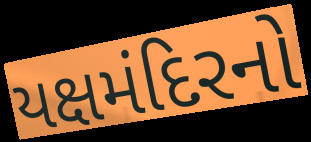
યક્ષમંદિરનો